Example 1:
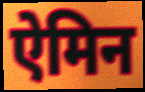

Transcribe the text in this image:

ऐमिन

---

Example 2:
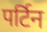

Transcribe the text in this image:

पर्टिन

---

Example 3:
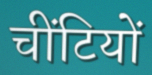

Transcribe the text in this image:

चींटियों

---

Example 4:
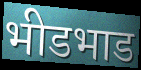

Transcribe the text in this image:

भीडभाड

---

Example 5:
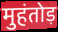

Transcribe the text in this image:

मुहंतोड़